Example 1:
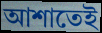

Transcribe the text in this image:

আশাতেই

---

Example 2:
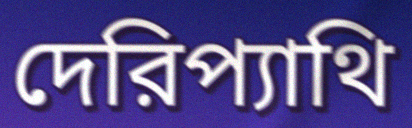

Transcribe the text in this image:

দেরিপ্যাথি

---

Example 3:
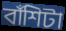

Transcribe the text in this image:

বাঁশিটা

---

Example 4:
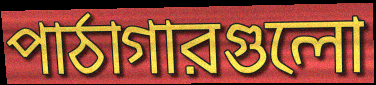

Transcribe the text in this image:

পাঠাগারগুলো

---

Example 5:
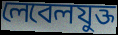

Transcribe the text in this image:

লেবেলযুক্ত